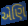
એણિ